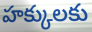
హక్కులకు